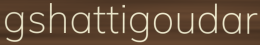
gshattigoudar